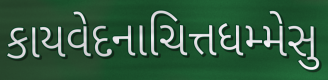
કાયવેદનાચિત્તધમ્મેસુ